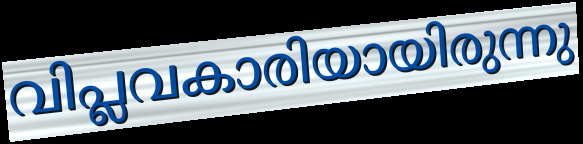
വിപ്ലവകാരിയായിരുന്നു